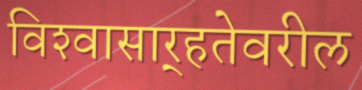
विश्वासार्हतेवरील